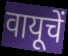
वायूचें